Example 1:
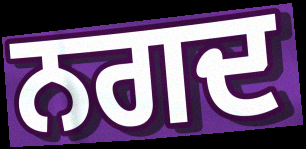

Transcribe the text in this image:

ਨਗਦ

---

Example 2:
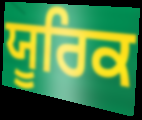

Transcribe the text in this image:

ਯੂਰਿਕ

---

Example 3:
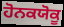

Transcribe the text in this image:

ਹੋਨਕਯੋਕੂ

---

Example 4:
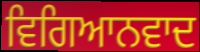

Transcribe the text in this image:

ਵਿਗਿਆਨਵਾਦ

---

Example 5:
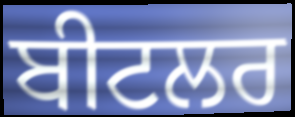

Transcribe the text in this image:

ਬੀਟਲਰ